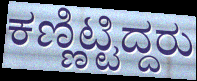
ಕಣ್ಣಿಟ್ಟಿದ್ದರು